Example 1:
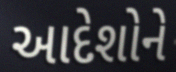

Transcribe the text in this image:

આદેશોને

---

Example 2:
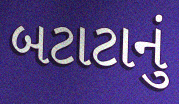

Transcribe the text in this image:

બટાટાનું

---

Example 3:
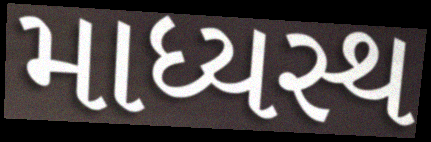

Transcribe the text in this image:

માધ્યસ્થ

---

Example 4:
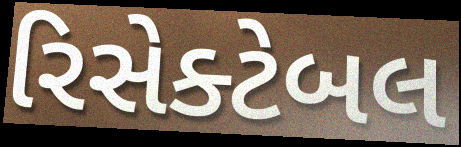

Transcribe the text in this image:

રિસેક્ટેબલ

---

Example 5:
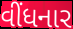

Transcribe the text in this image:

વીંધનાર